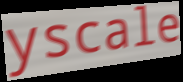
yscale